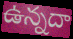
ఉన్నదా